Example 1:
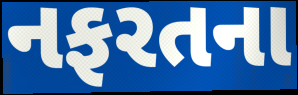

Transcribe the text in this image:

નફરતના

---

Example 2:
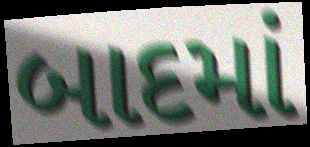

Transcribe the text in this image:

બાદમાં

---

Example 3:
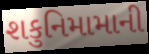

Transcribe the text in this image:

શકુનિમામાની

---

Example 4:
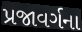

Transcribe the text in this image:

પ્રજાવર્ગના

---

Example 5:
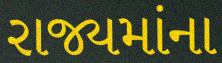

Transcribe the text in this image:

રાજ્યમાંના